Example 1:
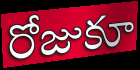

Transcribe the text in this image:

రోజుకూ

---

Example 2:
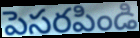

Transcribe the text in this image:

పెసరపిండి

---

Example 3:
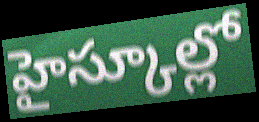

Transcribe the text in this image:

హైస్కూల్లో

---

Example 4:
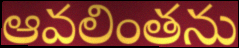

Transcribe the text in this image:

ఆవలింతను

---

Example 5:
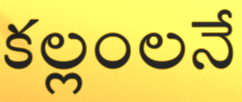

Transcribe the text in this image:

కల్లంలనే